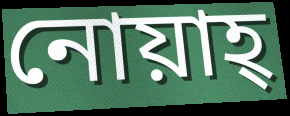
নোয়াহ্